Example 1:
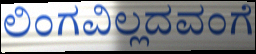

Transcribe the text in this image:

ಲಿಂಗವಿಲ್ಲದವಂಗೆ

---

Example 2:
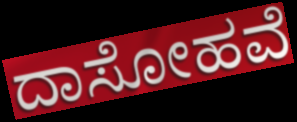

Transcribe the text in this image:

ದಾಸೋಹವೆ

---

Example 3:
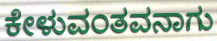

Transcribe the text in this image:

ಕೇಳುವಂತವನಾಗು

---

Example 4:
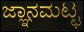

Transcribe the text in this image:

ಜ್ಞಾನಮಟ್ಟ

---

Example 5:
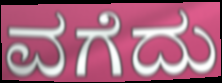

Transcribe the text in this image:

ವಗೆದು